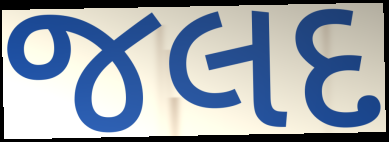
જલદ